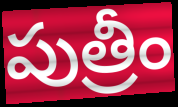
పుత్రీం